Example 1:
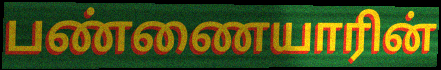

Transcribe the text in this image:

பண்ணையாரின்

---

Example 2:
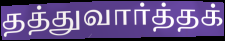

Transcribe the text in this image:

தத்துவார்த்தக்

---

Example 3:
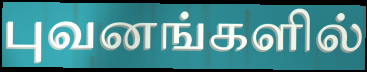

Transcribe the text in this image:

புவனங்களில்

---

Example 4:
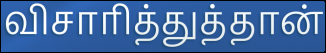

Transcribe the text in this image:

விசாரித்துத்தான்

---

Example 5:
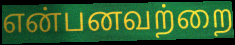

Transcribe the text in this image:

என்பனவற்றை